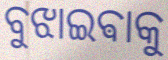
ବୁଝାଇଵାକୁ